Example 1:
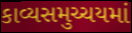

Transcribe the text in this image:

કાવ્યસમુચ્ચયમાં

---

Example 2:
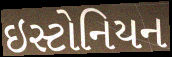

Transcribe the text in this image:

ઇસ્ટોનિયન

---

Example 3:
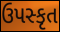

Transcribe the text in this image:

ઉપસ્કૃત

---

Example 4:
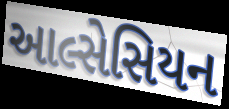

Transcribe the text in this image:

આલ્સેસિયન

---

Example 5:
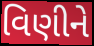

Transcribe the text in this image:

વિણીને